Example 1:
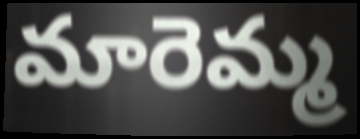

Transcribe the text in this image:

మారెమ్మ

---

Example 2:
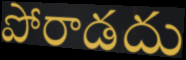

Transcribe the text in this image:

పోరాడదు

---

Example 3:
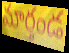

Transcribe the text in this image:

మార్తండ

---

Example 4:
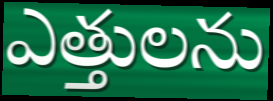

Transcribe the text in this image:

ఎత్తులను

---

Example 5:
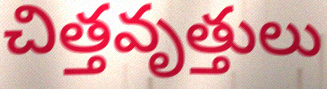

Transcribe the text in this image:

చిత్తవృత్తులు